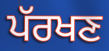
ਪੱਰਖਣ